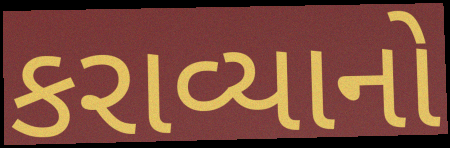
કરાવ્યાનો